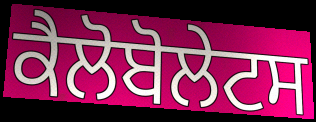
ਕੈਲੋਬੋਲੇਟਸ